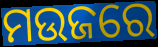
ମଉଜରେ